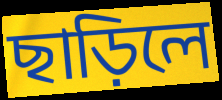
ছাড়িলে